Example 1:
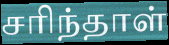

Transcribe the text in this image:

சரிந்தாள்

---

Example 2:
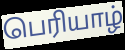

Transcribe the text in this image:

பெரியாழ்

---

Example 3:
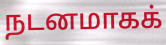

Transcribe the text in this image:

நடனமாகக்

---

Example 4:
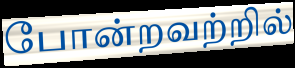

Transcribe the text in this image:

போன்றவற்றில்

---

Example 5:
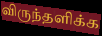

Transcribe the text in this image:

விருந்தளிக்க